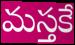
మస్తకే